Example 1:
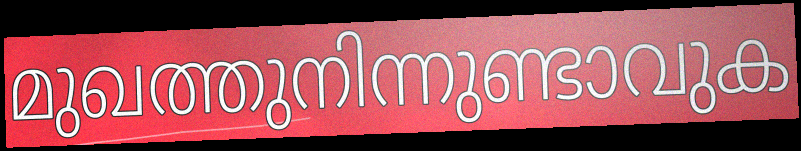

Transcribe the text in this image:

മുഖത്തുനിന്നുണ്ടാവുക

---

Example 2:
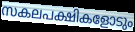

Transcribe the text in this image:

സകലപക്ഷികളോടും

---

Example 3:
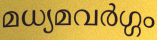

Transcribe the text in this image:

മധ്യമവർഗ്ഗം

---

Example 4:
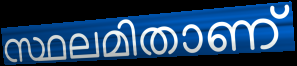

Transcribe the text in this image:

സ്ഥലമിതാണ്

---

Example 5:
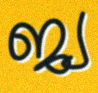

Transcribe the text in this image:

ജ്യ